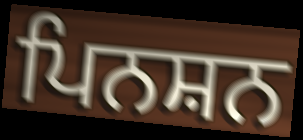
ਪਿਨਸ਼ਨ